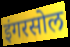
इंगरसोल